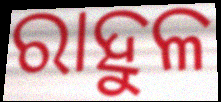
ରାହୁଳ